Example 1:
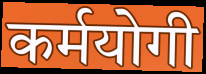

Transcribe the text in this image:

कर्मयोगी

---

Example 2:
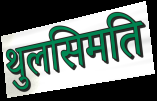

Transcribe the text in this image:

थुलसिमति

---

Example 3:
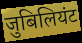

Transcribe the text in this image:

जुबिलियंट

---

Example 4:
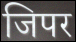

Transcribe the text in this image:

जिपर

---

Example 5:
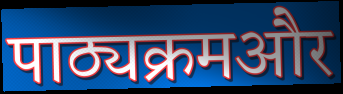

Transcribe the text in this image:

पाठ्यक्रमऔर